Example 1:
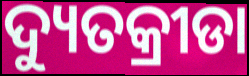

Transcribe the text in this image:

ଦ୍ୟୁତକ୍ରୀଡା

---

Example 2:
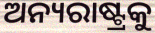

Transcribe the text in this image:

ଅନ୍ୟରାଷ୍ଟ୍ରକୁ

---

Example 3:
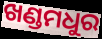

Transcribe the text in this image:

ଖଣ୍ଡମଧୁର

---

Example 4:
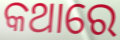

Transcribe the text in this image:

କଥାରେ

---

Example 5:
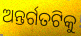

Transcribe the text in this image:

ଅନ୍ତର୍ଗତଟିକୁ